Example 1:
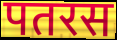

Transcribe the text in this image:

पतरस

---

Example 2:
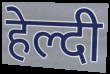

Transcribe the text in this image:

हेल्‍दी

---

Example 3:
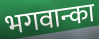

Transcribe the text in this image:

भगवान्का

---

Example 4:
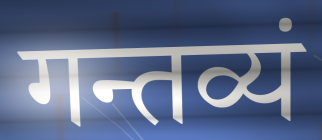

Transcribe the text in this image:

गन्तव्यं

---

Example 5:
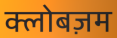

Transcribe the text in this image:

क्लोबज़म